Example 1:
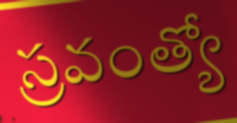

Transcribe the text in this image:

స్రవంత్యో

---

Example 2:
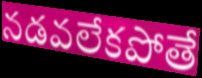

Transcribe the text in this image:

నడవలేకపోతే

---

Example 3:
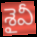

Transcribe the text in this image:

శైవీ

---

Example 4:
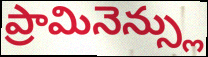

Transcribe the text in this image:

ప్రామినెన్స్లు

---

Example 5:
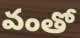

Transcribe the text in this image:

వంతో